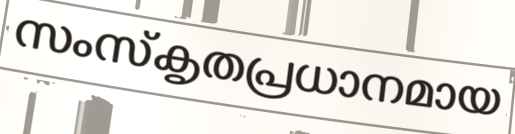
സംസ്‌കൃതപ്രധാനമായ